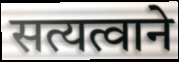
सत्यत्वाने